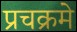
प्रचक्रमे